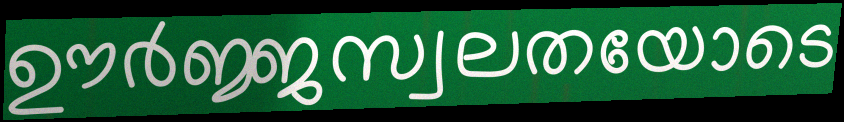
ഊർജ്ജസ്വലതയോടെ